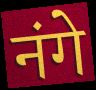
नंगे